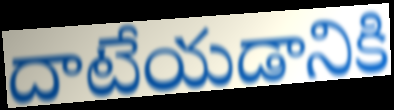
దాటేయడానికి